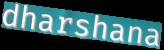
dharshana